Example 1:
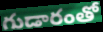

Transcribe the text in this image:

గుడారంతో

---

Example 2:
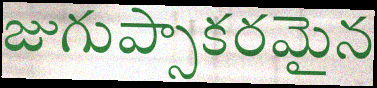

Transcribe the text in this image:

జుగుప్సాకరమైన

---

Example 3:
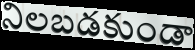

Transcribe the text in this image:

నిలబడకుండా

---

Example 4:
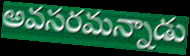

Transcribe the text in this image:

అవసరమన్నాడు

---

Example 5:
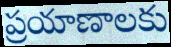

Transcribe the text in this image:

ప్రయాణాలకు